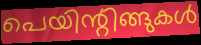
പെയിന്റിങ്ങുകൾ